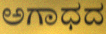
ಅಗಾಧದ